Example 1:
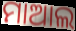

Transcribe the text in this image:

ମାଆଲ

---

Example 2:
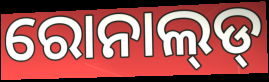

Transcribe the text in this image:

ରୋନାଲ୍‌ଡ୍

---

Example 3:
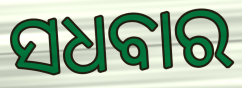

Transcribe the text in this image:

ସଧବାର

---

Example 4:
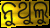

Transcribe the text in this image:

ନୁଥୁଲୁ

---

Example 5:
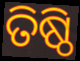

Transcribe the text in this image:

ତିଷ୍ଠି